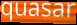
quasar